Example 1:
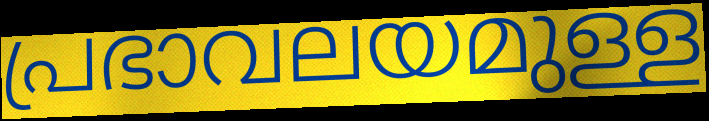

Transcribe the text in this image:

പ്രഭാവലയമുള്ള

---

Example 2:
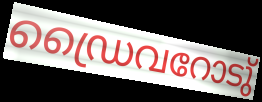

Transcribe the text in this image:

ഡ്രൈവറോടു്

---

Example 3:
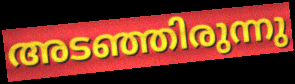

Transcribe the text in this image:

അടഞ്ഞിരുന്നു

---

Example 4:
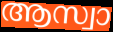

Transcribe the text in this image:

ആസ്വാ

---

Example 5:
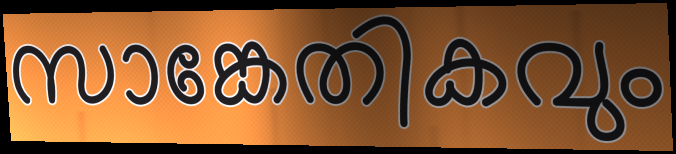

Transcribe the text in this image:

സാങ്കേതികവും